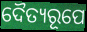
ଦୈତ୍ୟରୂପେ